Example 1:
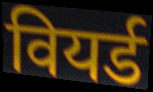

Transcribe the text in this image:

वियर्ड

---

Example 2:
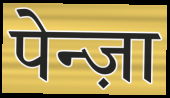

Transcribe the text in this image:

पेन्ज़ा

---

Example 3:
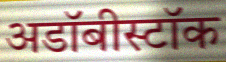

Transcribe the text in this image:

अडॉबीस्टॉक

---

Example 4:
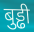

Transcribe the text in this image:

बुड्ढी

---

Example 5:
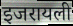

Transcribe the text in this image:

इजरायली